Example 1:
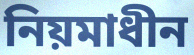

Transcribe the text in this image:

নিয়মাধীন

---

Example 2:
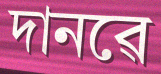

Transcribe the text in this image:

দানৱে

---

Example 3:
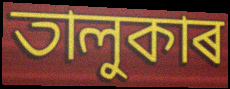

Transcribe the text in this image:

তালুকাৰ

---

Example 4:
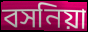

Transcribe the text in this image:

বসনিয়া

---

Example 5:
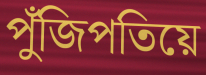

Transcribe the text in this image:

পুঁজিপতিয়ে